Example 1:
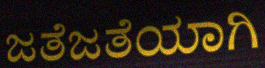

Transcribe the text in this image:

ಜತೆಜತೆಯಾಗಿ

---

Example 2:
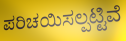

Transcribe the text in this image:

ಪರಿಚಯಿಸಲ್ಪಟ್ಟಿವೆ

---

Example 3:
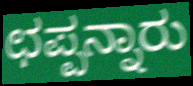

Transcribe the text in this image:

ಛಪ್ಪನ್ನಾರು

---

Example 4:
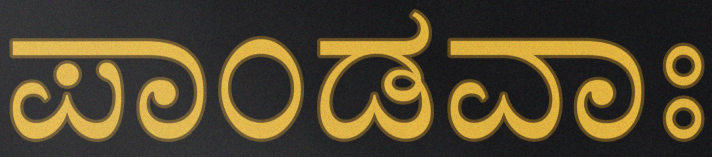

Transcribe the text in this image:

ಪಾಂಡವಾಃ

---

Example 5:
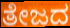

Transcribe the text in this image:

ತೇಜದ